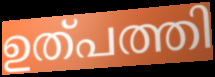
ഉത്പത്തി